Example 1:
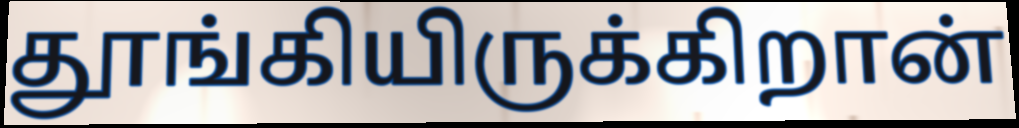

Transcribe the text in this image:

தூங்கியிருக்கிறான்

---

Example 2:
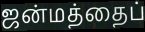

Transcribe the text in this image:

ஜன்மத்தைப்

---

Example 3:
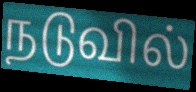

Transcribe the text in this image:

நடுவில்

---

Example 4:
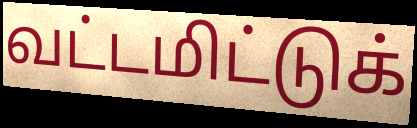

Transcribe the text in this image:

வட்டமிட்டுக்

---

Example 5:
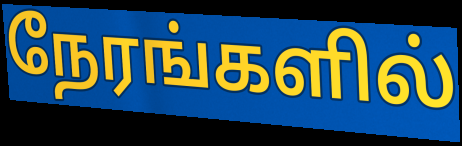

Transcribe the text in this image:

நேரங்களில்